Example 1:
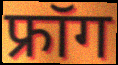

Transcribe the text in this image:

फ्रॉग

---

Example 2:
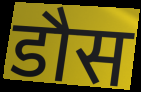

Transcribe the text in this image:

डौस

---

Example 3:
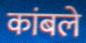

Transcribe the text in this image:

कांबले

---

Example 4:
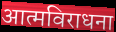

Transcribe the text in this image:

आत्मविराधना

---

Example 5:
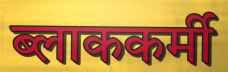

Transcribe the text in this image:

ब्लाककर्मी